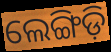
ଲେଙ୍ଗିଡ଼ି